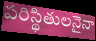
పరిస్థితులనైనా